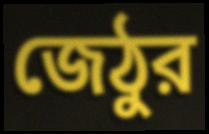
জেঠুর